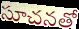
సూచనతో